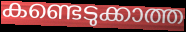
കണ്ടെടുക്കാത്ത